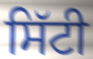
ਸਿੱਟੀ